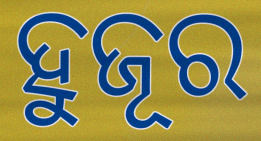
ହୁଜୂର